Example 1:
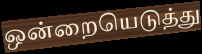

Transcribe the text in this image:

ஒன்றையெடுத்து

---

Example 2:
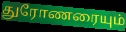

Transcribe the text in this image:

துரோணரையும்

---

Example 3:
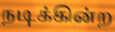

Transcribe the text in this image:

நடிக்கின்ற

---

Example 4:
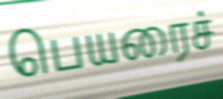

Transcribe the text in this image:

பெயரைச்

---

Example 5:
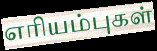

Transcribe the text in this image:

எரியம்புகள்